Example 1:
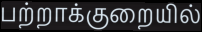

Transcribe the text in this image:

பற்றாக்குறையில்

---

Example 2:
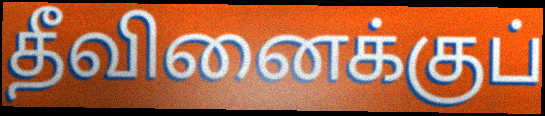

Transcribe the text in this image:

தீவினைக்குப்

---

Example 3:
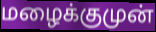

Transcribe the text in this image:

மழைக்குமுன்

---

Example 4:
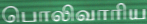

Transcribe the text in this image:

பொலிவாரிய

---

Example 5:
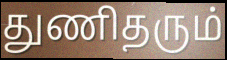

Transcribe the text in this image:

துணிதரும்